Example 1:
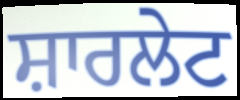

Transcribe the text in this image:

ਸ਼ਾਰਲੇਟ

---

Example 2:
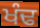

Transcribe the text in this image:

ਖੰਢ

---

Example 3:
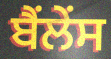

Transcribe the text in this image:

ਬੈਂਲੇਂਸ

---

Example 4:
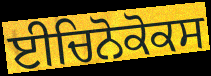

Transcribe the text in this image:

ਈਚਿਨੋਕੋਕਸ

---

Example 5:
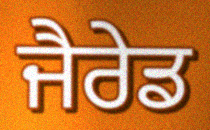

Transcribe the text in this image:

ਜੈਰੇਡ